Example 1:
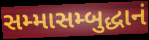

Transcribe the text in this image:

સમ્માસમ્બુદ્ધાનં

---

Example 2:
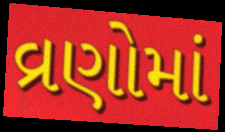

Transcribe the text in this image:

વ્રણોમાં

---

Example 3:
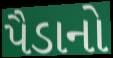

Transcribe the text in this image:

પૈડાનો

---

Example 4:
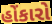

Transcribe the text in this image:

હોંકારો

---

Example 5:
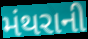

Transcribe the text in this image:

મંથરાની